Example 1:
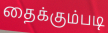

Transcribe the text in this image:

தைக்கும்படி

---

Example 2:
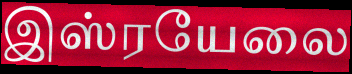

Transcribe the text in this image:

இஸ்ரயேலை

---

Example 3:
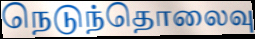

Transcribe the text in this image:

நெடுந்தொலைவு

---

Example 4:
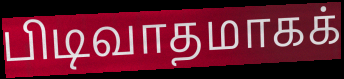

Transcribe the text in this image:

பிடிவாதமாகக்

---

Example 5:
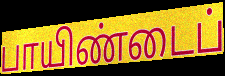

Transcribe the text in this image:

பாயிண்டைப்